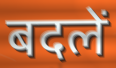
बदलें